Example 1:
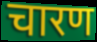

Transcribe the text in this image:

चारण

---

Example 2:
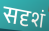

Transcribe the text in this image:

सदृशं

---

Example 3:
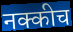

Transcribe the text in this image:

नक्‍कीच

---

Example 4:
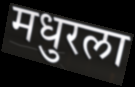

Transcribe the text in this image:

मधुरला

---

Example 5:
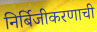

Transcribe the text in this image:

निर्बिजीकरणाची